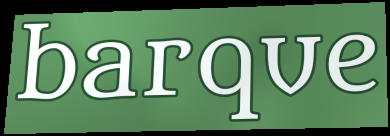
barque